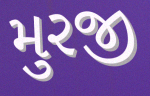
મુરજી